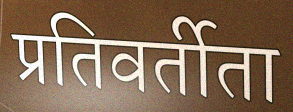
प्रतिवर्तीता